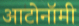
आटोनॉमी